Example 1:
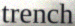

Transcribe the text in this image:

trench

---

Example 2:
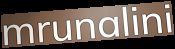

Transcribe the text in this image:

mrunalini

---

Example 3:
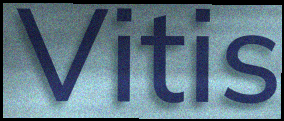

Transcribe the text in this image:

Vitis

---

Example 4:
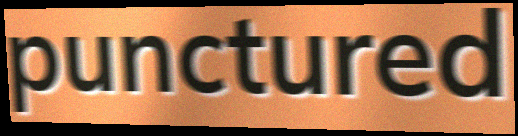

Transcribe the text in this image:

punctured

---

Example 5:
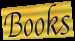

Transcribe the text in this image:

Books